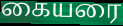
கையரை